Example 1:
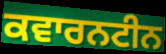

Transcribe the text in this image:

ਕਵਾਰਨਟੀਨ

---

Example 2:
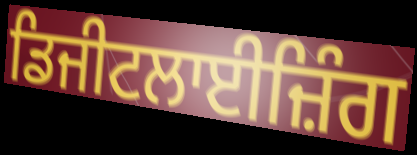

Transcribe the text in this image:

ਡਿਜੀਟਲਾਈਜ਼ਿੰਗ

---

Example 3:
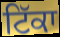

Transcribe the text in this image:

ਟਿੱਕਾ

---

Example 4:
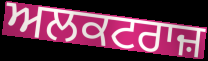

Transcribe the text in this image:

ਅਲਕਟਰਾਜ਼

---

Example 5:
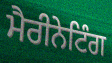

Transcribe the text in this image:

ਮੈਰੀਨੇਟਿੰਗ